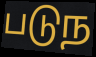
படுந